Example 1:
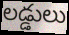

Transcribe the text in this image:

లడ్డులు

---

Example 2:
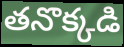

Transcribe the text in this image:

తనొక్కడి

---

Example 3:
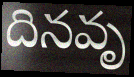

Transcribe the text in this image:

దినవృ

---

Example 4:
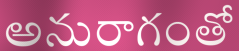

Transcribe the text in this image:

అనురాగంతో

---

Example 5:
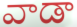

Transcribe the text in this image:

వాడా